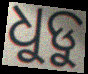
ଧୁଡୁ